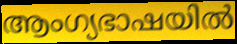
ആംഗ്യഭാഷയിൽ